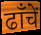
ढाँचें